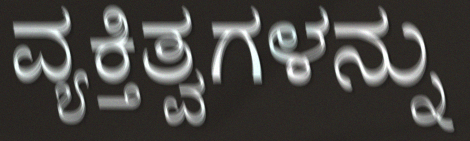
ವ್ಯಕ್ತಿತ್ವಗಳನ್ನು